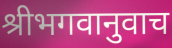
श्रीभगवानुवाच